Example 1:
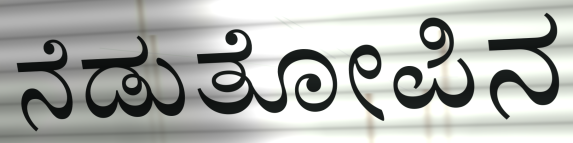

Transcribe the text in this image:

ನೆಡುತೋಪಿನ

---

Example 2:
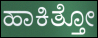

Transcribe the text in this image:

ಹಾಕಿತ್ತೋ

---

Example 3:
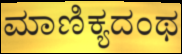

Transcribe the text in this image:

ಮಾಣಿಕ್ಯದಂಥ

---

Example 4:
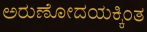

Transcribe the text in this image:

ಅರುಣೋದಯಕ್ಕಿಂತ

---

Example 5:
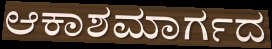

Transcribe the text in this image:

ಆಕಾಶಮಾರ್ಗದ